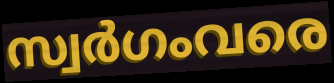
സ്വർഗംവരെ